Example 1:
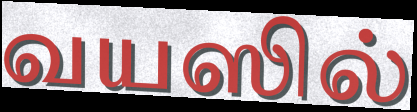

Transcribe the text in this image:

வயஸில்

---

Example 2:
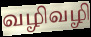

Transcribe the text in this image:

வழிவழி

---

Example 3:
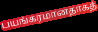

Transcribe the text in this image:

பயங்கரமானதாகத்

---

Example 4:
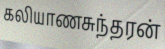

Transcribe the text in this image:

கலியாணசுந்தரன்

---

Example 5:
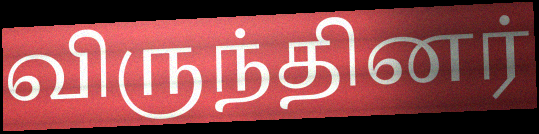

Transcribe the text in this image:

விருந்தினர்